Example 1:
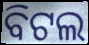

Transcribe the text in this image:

ବିଟଲ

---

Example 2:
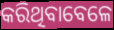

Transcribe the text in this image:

କରିଥିବାବେଳେ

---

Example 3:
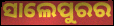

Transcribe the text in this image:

ସାଲେପୁରର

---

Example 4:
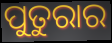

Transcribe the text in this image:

ପୁତୁରାର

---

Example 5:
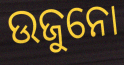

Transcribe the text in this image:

ଉଜୁନୋ